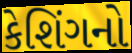
કેશિંગનો